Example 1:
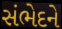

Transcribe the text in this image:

સંભેદને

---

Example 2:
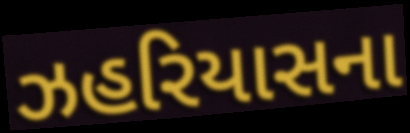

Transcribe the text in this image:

ઝહરિયાસના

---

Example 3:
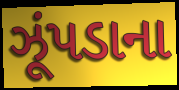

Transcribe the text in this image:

ઝૂંપડાના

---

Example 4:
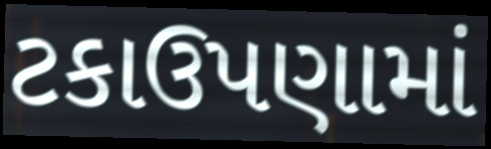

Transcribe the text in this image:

ટકાઉપણામાં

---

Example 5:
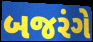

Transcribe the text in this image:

બજરંગે